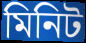
মিনিট